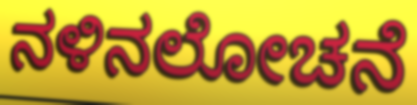
ನಳಿನಲೋಚನೆ